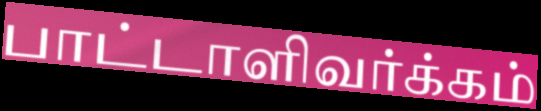
பாட்டாளிவர்க்கம்